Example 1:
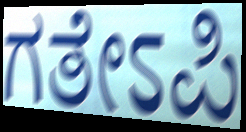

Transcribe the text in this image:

ಗತೇಽಪಿ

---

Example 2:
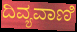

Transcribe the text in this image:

ದಿವ್ಯವಾಣಿ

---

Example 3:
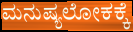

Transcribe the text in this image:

ಮನುಷ್ಯಲೋಕಕ್ಕೆ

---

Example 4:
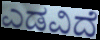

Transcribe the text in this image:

ಎಡವಿದೆ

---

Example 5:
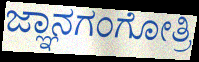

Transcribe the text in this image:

ಜ್ಞಾನಗಂಗೋತ್ರಿ